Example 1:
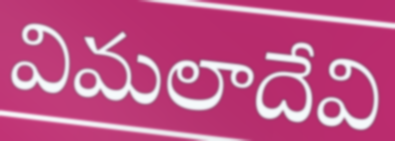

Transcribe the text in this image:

విమలాదేవి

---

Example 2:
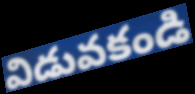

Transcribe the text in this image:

విడువకండి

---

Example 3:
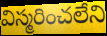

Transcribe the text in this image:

విస్మరించలేని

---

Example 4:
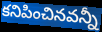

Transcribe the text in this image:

కనిపించినవన్నీ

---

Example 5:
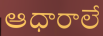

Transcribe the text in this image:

ఆధారాలే